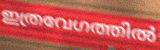
ഇത്രവേഗത്തിൽ